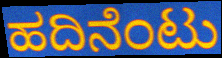
ಹದಿನೆಂಟು